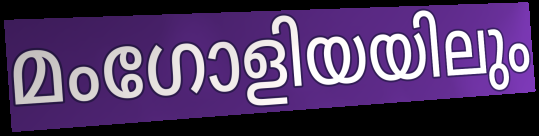
മംഗോളിയയിലും